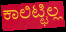
ಕಾಲಿಟ್ಟಿಲ್ಲ